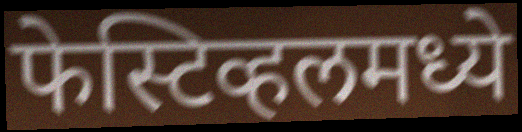
फेस्टिव्हलमध्ये